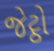
જેટ્ઠો